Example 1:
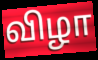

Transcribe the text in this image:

விழா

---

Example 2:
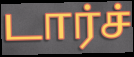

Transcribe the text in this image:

டார்ச்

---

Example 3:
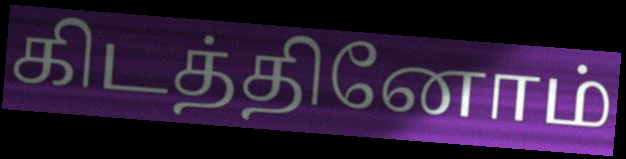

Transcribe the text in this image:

கிடத்தினோம்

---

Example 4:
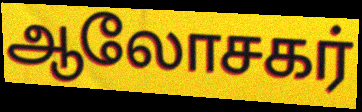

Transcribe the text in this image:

ஆலோசகர்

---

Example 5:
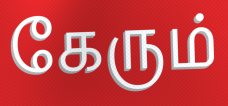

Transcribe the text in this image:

கேரும்